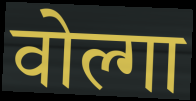
वोल्गा